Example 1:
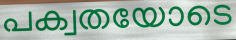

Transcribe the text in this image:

പക്വതയോടെ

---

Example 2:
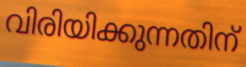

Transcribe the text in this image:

വിരിയിക്കുന്നതിന്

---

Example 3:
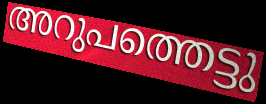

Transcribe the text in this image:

അറുപത്തെട്ടു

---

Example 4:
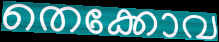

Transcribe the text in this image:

തെക്കോവ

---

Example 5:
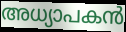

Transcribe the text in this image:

അധ്യാപകൻ